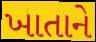
ખાતાને